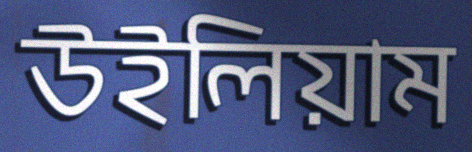
উইলিয়াম